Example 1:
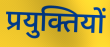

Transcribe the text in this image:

प्रयुक्तियों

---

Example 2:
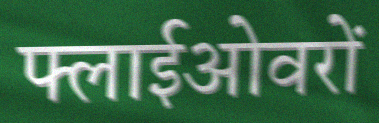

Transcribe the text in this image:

फ्लाईओवरों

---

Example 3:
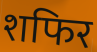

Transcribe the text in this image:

शफिर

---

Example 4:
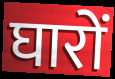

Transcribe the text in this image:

घारों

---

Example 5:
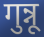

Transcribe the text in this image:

गुन्नू